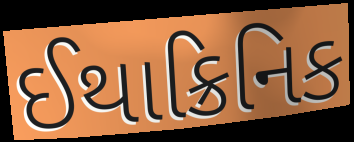
ઈથાક્રિનિક